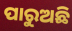
ପାରୁଅଛି